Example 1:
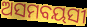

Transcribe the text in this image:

ଅସମବୟସୀ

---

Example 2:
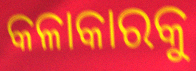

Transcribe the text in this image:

କଳାକାରକୁ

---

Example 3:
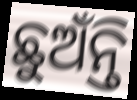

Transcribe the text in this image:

ଛୁଅଁନ୍ତି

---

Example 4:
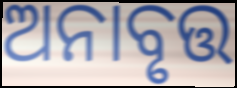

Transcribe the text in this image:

ଅନାବୃତ୍ତ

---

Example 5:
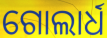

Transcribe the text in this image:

ଗୋଲାର୍ଧ